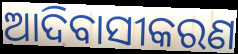
ଆଦିବାସୀକରଣ